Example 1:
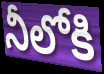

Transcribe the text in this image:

నీలోకి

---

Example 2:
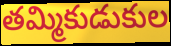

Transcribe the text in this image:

తమ్మికుడుకుల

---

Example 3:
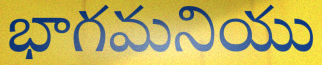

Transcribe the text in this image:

భాగమనియు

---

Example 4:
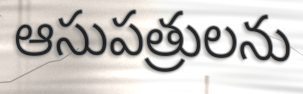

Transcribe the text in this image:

ఆసుపత్రులను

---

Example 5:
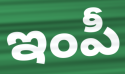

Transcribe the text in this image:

ఇంపీ